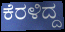
ಕೆರಳಿದ್ದ